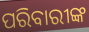
ପରିବାରୀଙ୍କ